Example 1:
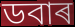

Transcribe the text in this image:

ডবাৰ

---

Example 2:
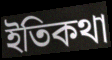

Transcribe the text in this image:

ইতিকথা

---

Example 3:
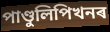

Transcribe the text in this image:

পাণ্ডুলিপিখনৰ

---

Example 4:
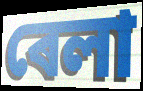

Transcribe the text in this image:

ৰেলা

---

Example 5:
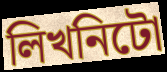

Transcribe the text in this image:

লিখনিটো